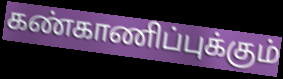
கண்காணிப்புக்கும்